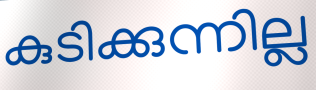
കുടിക്കുന്നില്ല